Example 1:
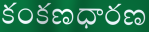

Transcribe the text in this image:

కంకణధారణ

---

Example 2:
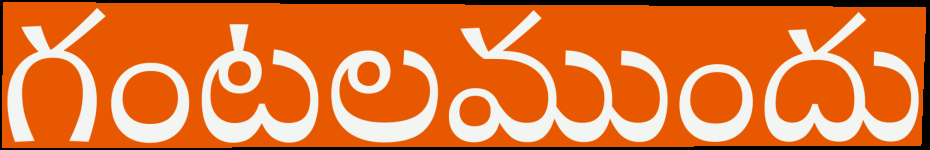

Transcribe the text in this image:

గంటలముందు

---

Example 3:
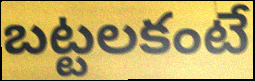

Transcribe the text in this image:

బట్టలకంటే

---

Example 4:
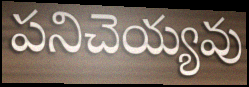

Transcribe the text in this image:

పనిచెయ్యవు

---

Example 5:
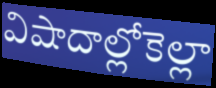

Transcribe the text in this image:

విషాదాల్లోకెల్లా